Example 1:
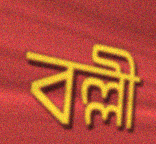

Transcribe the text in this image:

বল্লী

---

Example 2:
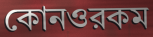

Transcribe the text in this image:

কোনওরকম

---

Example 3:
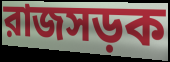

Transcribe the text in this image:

রাজসড়ক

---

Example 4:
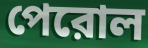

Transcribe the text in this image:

পেরোল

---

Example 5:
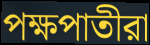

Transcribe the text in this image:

পক্ষপাতীরা